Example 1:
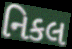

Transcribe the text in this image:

નિકલ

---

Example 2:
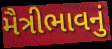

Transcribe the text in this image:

મૈત્રીભાવનું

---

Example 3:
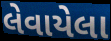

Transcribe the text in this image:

લેવાયેલા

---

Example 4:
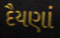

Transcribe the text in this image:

દૈયણાં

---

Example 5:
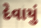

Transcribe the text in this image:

દેવાયું